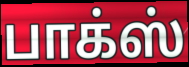
பாக்ஸ்